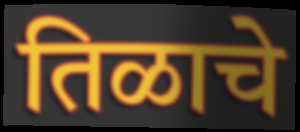
तिळाचे